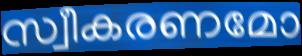
സ്വീകരണമോ